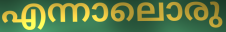
എന്നാലൊരു